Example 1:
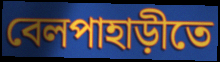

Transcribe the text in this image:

বেলপাহাড়ীতে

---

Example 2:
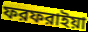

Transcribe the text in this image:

ফরফরাইয়া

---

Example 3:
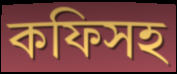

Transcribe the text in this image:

কফিসহ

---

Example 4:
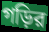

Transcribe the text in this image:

গড়ির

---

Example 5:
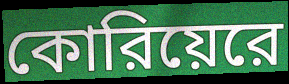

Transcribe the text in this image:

কোরিয়েরে